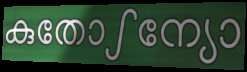
കുതോഽന്യോ